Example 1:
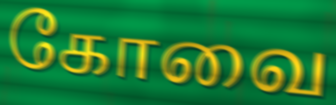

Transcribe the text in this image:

கோவை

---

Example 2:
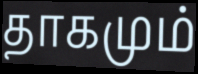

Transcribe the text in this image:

தாகமும்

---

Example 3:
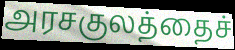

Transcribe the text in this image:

அரசகுலத்தைச்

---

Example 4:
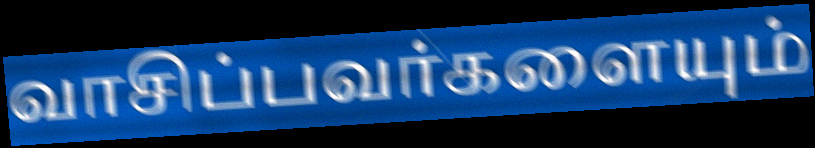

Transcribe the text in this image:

வாசிப்பவர்களையும்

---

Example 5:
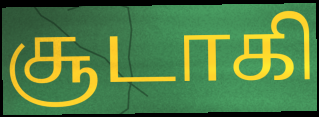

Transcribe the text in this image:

சூடாகி